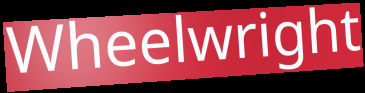
Wheelwright